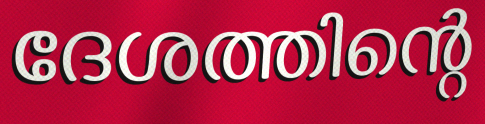
ദേശത്തിന്റെ